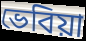
ভেবিয়া